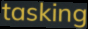
tasking